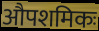
औपशमिकः